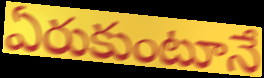
ఏరుకుంటూనే